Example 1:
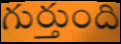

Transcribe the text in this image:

గుర్తుంది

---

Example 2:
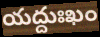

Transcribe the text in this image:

యద్దుఃఖం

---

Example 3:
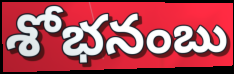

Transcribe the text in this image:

శోభనంబు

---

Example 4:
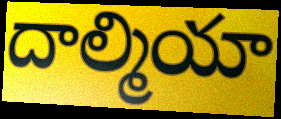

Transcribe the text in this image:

దాల్మియా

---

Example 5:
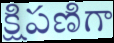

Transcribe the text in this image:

క్షిపణిగా